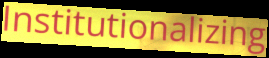
Institutionalizing